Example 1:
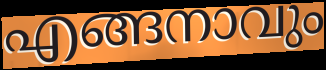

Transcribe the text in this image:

എങ്ങനാവും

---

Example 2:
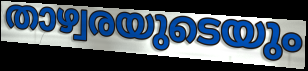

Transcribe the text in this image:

താഴ്വരയുടെയും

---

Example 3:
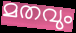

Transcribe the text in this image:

മതവും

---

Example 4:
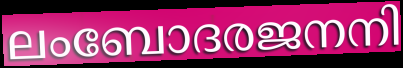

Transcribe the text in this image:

ലംബോദരജനനി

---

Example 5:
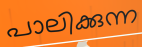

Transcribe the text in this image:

പാലിക്കുന്ന